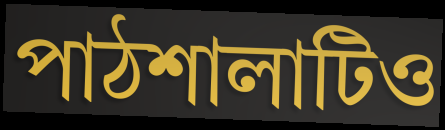
পাঠশালাটিও